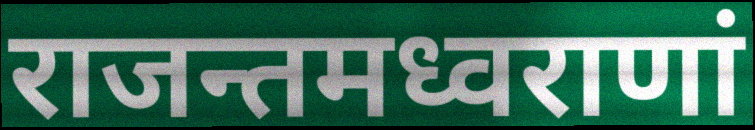
राजन्तमध्वराणां